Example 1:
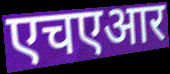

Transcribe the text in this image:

एचएआर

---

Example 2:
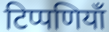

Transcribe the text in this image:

टिप्पणियाँ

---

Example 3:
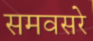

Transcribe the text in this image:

समवसरे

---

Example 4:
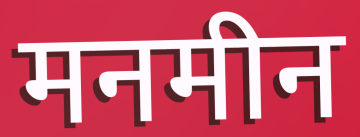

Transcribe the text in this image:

मनमीन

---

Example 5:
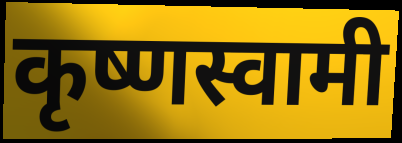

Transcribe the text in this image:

कृष्णस्वामी